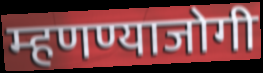
म्हणण्याजोगी